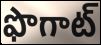
ఫొగాట్